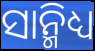
ସାନ୍ମିଧ୍ୟ